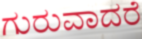
ಗುರುವಾದರೆ